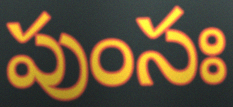
పుంసః